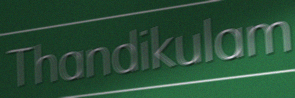
Thandikulam